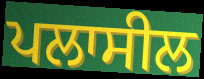
ਪਲਾਸੀਲ